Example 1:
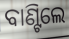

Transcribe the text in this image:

ବାଣ୍ଟିଲେ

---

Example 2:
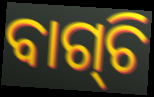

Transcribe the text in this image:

ବାଗ୍‌ଚି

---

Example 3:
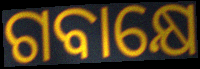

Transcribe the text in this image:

ଗବାକ୍ଷେ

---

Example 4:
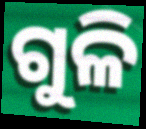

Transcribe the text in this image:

ଗୁଳି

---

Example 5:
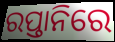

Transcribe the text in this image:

ରପ୍ତାନିରେ